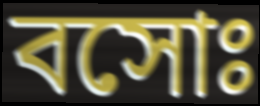
বসোঃ